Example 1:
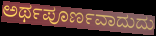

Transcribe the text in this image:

ಅರ್ಥಪೂರ್ಣವಾದುದು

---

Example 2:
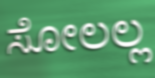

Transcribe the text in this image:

ಸೋಲಲ್ಲ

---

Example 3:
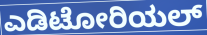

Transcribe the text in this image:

ಎಡಿಟೋರಿಯಲ್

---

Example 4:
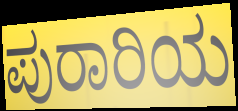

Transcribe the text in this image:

ಪುರಾರಿಯ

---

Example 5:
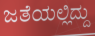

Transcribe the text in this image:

ಜತೆಯಲ್ಲಿದ್ದು